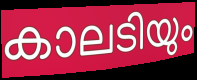
കാലടിയും